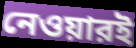
নেওয়ারই